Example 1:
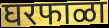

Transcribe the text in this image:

घरफाळा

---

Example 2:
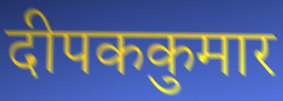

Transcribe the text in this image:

दीपककुमार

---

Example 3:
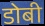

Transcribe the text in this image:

डोबी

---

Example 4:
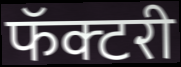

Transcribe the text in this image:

फॅक्‍टरी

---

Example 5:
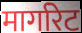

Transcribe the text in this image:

मार्गारेट